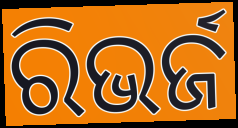
ରିଭର୍ଜ